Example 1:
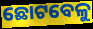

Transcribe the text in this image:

ଛୋଟବେଳୁ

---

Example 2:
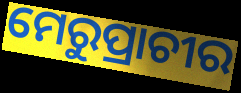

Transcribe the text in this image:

ମେରୁପ୍ରାଚୀର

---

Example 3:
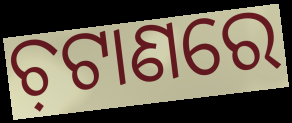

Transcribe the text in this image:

ଚ଼ଟାଣରେ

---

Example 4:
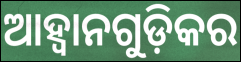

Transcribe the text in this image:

ଆହ୍ଵାନଗୁଡ଼ିକର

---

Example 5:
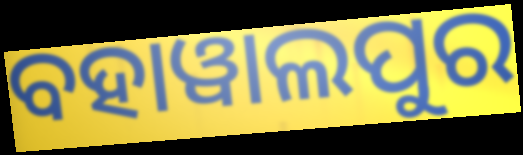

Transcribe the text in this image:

ବହାୱାଲପୁର